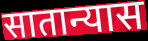
सातान्यास